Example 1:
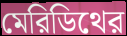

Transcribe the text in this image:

মেরিডিথের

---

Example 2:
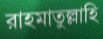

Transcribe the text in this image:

রাহমাতুল্লাহি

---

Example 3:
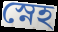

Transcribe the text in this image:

স্নেহ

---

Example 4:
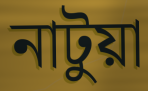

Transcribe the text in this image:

নাটুয়া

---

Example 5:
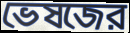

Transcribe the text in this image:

ভেষজের